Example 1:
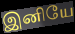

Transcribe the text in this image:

இனியே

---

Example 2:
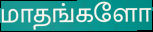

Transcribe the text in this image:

மாதங்களோ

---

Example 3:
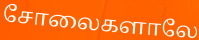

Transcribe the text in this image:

சோலைகளாலே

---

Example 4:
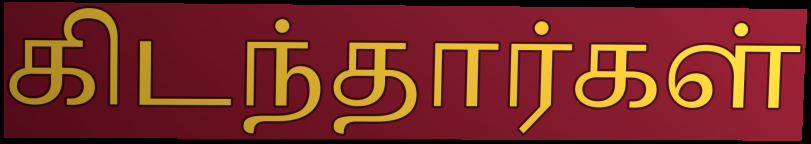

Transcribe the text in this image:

கிடந்தார்கள்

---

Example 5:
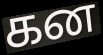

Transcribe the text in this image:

கன